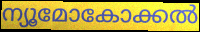
ന്യൂമോകോക്കൽ